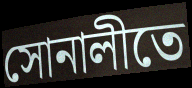
সোনালীতে